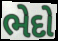
ભેદો